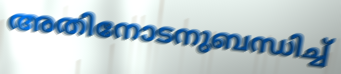
അതിനോടനുബന്ധിച്ച്